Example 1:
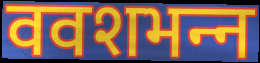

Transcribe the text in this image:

ववशभन्न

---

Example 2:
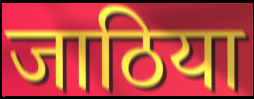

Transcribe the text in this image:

जाठिया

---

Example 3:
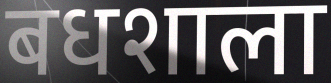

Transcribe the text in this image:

बधशाला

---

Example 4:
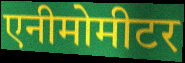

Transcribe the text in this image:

एनीमोमीटर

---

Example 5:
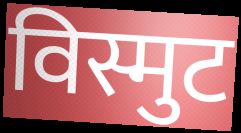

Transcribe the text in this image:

विस्मुट